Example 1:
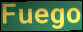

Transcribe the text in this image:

Fuego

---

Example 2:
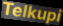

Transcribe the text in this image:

Telkupi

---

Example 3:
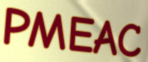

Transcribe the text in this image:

PMEAC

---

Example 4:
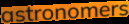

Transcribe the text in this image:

astronomers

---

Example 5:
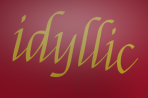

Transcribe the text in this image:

idyllic